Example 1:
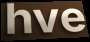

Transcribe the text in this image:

hve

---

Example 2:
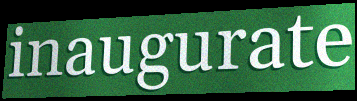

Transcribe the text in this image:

inaugurate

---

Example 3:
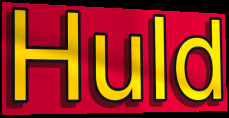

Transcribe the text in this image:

Huld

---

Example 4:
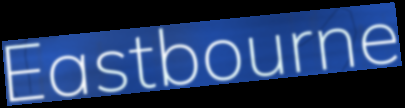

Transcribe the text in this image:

Eastbourne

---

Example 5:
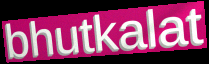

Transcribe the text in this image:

bhutkalat